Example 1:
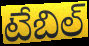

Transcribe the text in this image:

టేబిల్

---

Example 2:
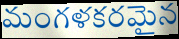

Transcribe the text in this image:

మంగళకరమైన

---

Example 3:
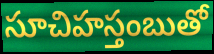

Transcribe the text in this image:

సూచిహస్తంబుతో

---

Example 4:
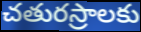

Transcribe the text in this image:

చతురస్రాలకు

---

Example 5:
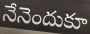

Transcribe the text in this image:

నేనెందుకూ